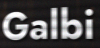
Galbi